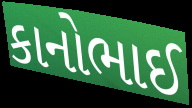
કાનોભાઈ